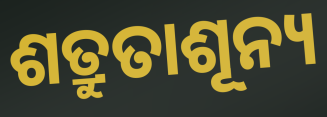
ଶତ୍ରୁତାଶୂନ୍ୟ